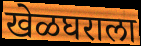
खेळघराला